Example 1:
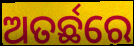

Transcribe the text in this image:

ଅତର୍ଛରେ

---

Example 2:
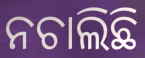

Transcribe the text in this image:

ନଚାଲିଛି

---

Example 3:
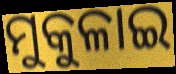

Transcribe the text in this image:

ମୁକୁଳାଇ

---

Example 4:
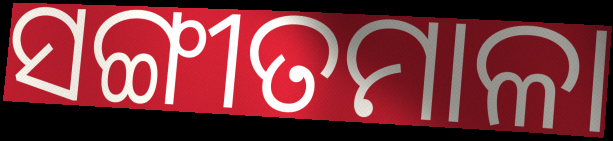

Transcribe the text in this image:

ସଙ୍ଗୀତମାଳା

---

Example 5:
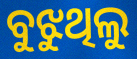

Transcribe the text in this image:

ବୁଝୁଥିଲୁ